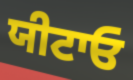
ਯੀਟਾਓ